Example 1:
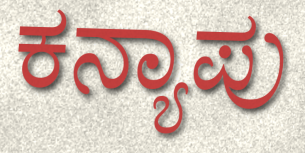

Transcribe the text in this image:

ಕನ್ಯಾಪು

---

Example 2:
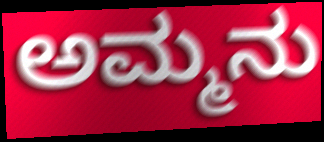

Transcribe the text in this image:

ಅಮ್ಮನು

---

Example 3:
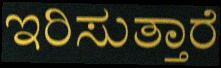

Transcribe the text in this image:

ಇರಿಸುತ್ತಾರೆ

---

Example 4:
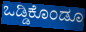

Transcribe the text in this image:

ಒಡ್ಡಿಕೊಂಡೂ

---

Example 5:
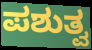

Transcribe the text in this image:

ಪಶುತ್ವ